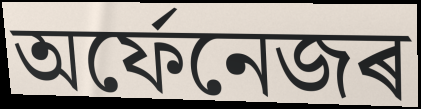
অৰ্ফেনেজৰ